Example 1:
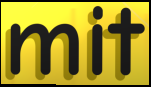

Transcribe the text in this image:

mit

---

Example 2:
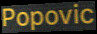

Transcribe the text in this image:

Popovic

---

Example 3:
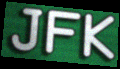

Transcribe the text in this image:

JFK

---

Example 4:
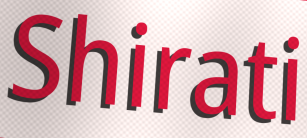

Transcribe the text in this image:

Shirati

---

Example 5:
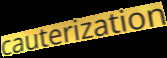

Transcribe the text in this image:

cauterization